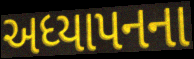
અધ્યાપનના